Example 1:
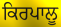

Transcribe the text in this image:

ਕਿਰਪਾਲੂ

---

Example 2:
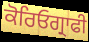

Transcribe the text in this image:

ਕੋਰਿਓਗ੍ਰਾਫੀ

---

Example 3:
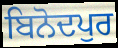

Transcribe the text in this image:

ਬਿਨੋਦਪੁਰ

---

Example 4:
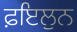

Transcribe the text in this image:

ਫ਼ਇਲੁਨ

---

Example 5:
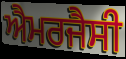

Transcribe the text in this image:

ਐਮਰਜੈਸੀ